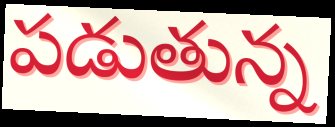
పడుతున్న